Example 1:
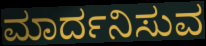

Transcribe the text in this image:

ಮಾರ್ದನಿಸುವ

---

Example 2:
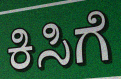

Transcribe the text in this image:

ಕಿಸಿಗೆ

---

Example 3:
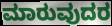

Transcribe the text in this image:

ಮಾರುವುದರ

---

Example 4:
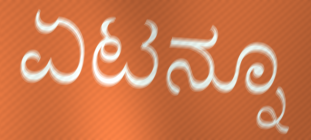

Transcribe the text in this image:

ಏಟನ್ನೂ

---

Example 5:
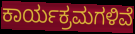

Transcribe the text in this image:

ಕಾರ್ಯಕ್ರಮಗಳಿವೆ